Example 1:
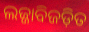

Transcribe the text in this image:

ଲଜ୍ଜାବିଜଡ଼ିତ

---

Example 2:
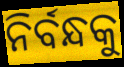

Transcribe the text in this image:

ନିର୍ବନ୍ଧକୁ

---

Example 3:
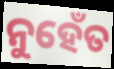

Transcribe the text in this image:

ନୁହେଁତ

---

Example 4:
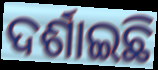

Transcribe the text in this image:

ଦର୍ଶାଇଛି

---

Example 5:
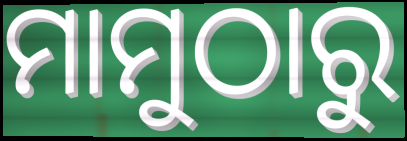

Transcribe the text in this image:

ମାମୁଠାରୁ